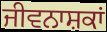
ਜੀਵਨਾਸ਼ਕਾਂ